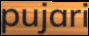
pujari